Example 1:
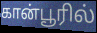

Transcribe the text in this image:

கான்பூரில்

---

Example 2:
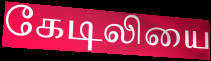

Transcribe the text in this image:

கேடிலியை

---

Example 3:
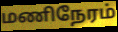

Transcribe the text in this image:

மணிநேரம்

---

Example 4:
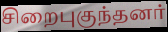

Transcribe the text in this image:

சிறைபுகுந்தனர்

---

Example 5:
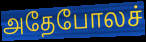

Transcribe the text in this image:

அதேபோலச்